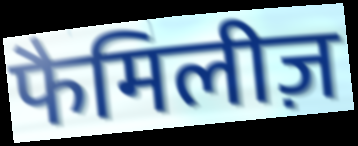
फैमिलीज़